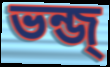
ভন্জ্